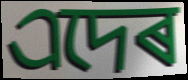
এদেৰ